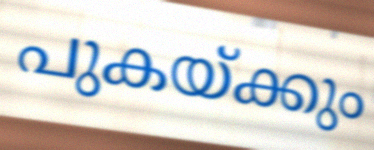
പുകയ്ക്കും